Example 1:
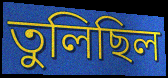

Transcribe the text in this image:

তুলিছিল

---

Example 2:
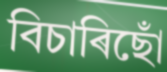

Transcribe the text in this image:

বিচাৰিছোঁ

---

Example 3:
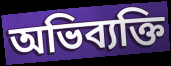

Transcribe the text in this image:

অভিব্যক্তি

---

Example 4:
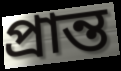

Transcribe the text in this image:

প্ৰান্ত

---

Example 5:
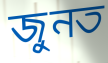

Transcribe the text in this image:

জুনত